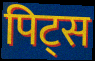
पिट्स